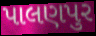
પાલણપુર